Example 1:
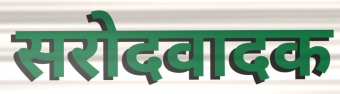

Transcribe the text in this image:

सरोदवादक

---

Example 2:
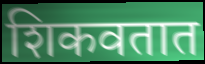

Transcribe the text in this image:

शिकवतात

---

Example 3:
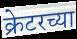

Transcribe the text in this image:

क्रेटरच्या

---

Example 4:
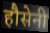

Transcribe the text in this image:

हौसेनी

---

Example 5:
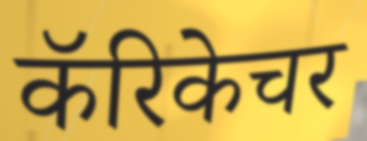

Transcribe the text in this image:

कॅरिकेचर